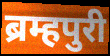
ब्रम्हपुरी